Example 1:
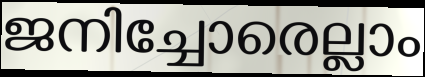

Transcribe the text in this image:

ജനിച്ചോരെല്ലാം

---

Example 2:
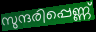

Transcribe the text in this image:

സുന്ദരിപ്പെണ്ണ്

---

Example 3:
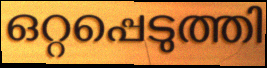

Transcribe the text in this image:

ഒറ്റപ്പെടുത്തി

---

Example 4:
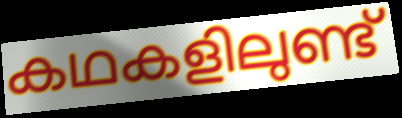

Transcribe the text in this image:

കഥകളിലുണ്ട്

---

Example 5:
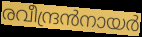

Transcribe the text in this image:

രവീന്ദ്രൻനായർ